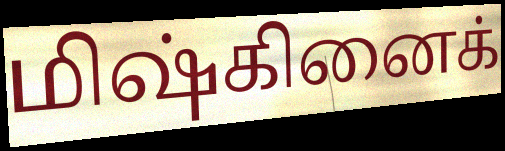
மிஷ்கினைக்